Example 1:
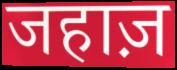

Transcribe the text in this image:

जहाज़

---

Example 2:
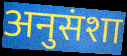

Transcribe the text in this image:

अनुसंशा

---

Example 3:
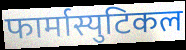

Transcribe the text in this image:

फार्मास्युटिकल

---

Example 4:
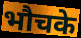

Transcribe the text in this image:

भौचके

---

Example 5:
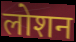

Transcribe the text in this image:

लोशन